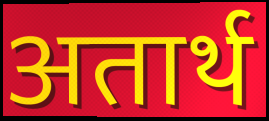
अतार्थ